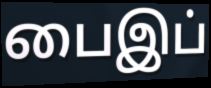
பைஇப்